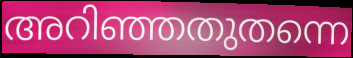
അറിഞ്ഞതുതന്നെ